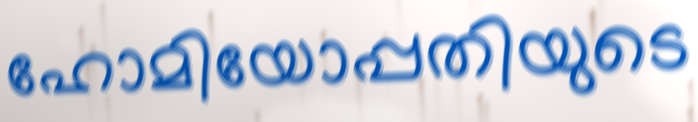
ഹോമിയോപ്പതിയുടെ